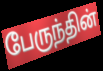
பேருந்தின்